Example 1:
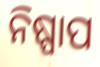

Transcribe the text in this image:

ନିଷ୍ପାପ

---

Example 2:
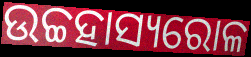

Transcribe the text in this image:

ଉଚ୍ଚହାସ୍ୟରୋଳ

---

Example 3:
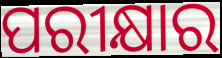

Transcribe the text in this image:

ପରୀକ୍ଷାର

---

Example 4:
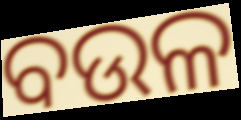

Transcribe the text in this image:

ବଉଳ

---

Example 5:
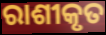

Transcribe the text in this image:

ରାଶୀକୃତ